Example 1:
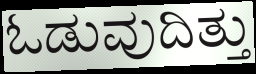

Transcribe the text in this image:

ಓಡುವುದಿತ್ತು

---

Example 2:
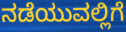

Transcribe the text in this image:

ನಡೆಯುವಲ್ಲಿಗೆ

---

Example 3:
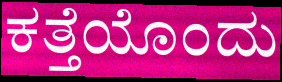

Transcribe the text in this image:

ಕತ್ತೆಯೊಂದು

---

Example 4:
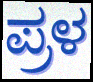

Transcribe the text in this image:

ಪ್ರಳ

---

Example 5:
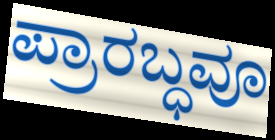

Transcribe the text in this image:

ಪ್ರಾರಬ್ಧವೂ